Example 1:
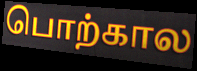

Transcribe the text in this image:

பொற்கால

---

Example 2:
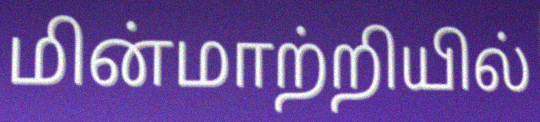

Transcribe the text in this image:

மின்மாற்றியில்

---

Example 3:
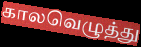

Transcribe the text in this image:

காலவெழுத்து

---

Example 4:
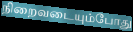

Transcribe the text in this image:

நிறைவடையும்போது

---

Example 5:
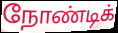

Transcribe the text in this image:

நோண்டிக்